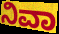
ನಿವಾ